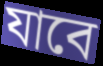
যাবে